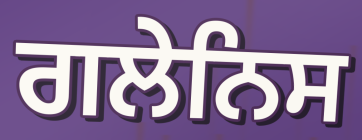
ਗਲੇਨਿਸ